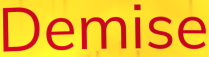
Demise